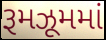
રૂમઝૂમમાં